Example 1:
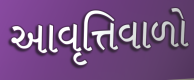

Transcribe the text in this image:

આવૃત્તિવાળો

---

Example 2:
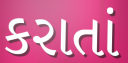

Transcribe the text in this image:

કરાતાં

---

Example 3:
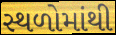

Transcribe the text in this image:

સ્થળોમાંથી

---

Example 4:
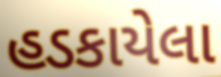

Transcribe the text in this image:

હડકાયેલા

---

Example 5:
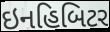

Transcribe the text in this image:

ઇનહિબિટર